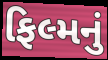
ફિલ્મનું